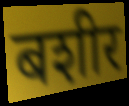
बशीर